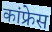
कांफ्रेस